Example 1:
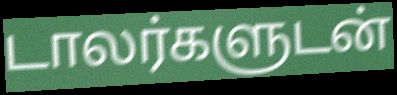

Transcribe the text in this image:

டாலர்களுடன்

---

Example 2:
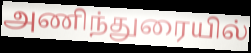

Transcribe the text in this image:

அணிந்துரையில்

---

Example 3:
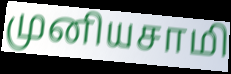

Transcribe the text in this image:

முனியசாமி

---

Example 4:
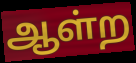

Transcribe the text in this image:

ஆள்ற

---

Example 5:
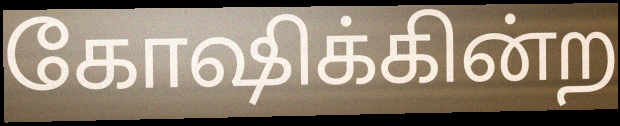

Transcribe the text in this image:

கோஷிக்கின்ற